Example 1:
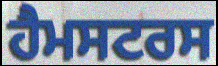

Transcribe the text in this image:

ਹੈਮਸਟਰਸ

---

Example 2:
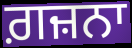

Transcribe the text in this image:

ਗ਼ਜ਼ਨਾ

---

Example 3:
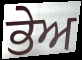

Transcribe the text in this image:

ਭੇਅ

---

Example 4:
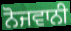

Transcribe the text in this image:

ਨੋਜਵਾਨੀ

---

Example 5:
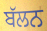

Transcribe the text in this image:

ਬੱਲਨ